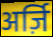
अर्ज़ि